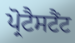
ਪ੍ਰੋਟੈਸਟੈਂਟ